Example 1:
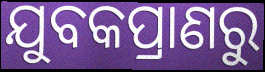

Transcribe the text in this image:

ଯୁବକପ୍ରାଣରୁ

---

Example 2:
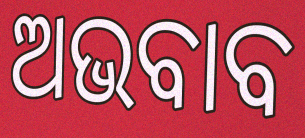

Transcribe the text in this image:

ଅଭବାବ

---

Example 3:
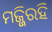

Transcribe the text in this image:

ମଜ୍ଜିରହି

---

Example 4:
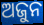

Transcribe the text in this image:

ଅଜୁନ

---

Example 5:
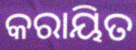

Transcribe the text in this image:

କରାୟିତ